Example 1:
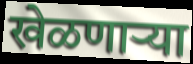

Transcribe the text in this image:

खेळणाऱ्या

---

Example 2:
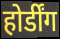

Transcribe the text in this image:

होर्डींग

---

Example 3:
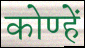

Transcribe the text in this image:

कोण्हें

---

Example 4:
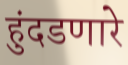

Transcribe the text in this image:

हुंदडणारे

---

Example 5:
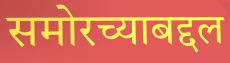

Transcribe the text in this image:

समोरच्याबद्दल